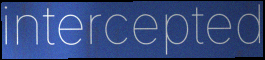
intercepted